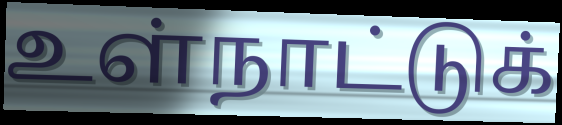
உள்நாட்டுக்